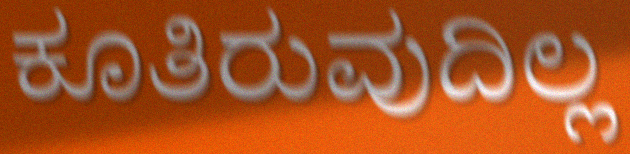
ಕೂತಿರುವುದಿಲ್ಲ